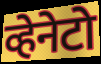
व्हेनेटो